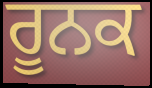
ਰੂਨਕ